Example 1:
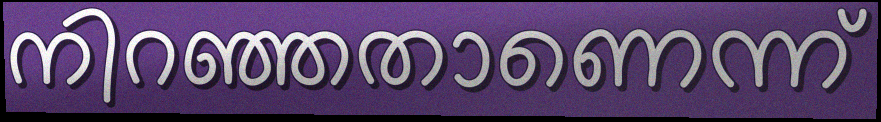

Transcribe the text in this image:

നിറഞ്ഞതാണെന്ന്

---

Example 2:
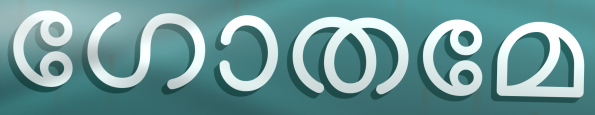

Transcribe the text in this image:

ഗോതമേ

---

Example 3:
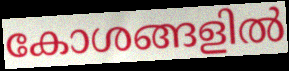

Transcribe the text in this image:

കോശങ്ങളിൽ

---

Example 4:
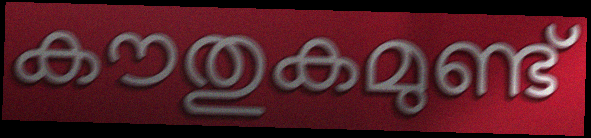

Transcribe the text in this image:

കൗതുകമുണ്ട്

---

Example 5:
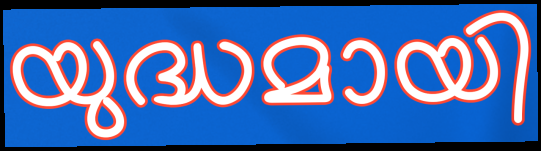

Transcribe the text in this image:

യുദ്ധമായി